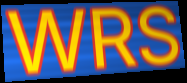
WRS